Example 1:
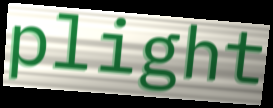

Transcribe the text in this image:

plight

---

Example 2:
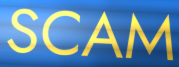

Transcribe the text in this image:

SCAM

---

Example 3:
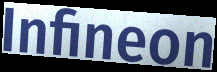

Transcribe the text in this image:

Infineon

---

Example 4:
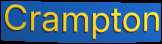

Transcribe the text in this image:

Crampton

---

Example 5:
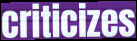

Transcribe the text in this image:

criticizes